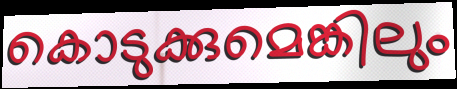
കൊടുക്കുമെങ്കിലും